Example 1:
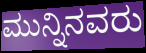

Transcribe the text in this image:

ಮುನ್ನಿನವರು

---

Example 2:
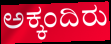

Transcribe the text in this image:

ಅಕ್ಕಂದಿರು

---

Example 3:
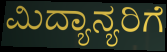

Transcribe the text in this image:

ಮಿದ್ಯಾನ್ಯರಿಗೆ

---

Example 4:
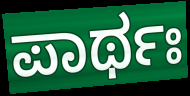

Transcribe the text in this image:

ಪಾರ್ಥಃ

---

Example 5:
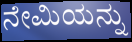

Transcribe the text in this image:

ನೇಮಿಯನ್ನು